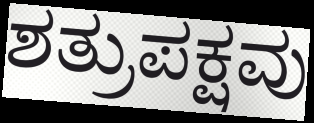
ಶತ್ರುಪಕ್ಷವು